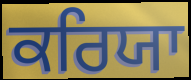
ਕਰਿਯਾ